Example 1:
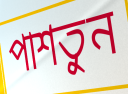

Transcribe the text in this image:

পাশতুন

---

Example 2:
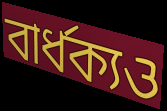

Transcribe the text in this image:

বার্ধক্যও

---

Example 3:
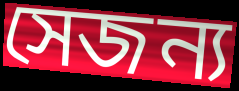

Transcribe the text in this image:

সেজন্য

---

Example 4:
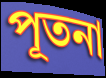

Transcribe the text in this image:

পূতনা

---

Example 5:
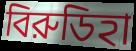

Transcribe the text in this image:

বিরুডিহা